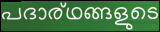
പദാര്ഥങ്ങളുടെ